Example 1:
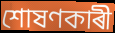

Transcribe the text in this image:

শোষণকাৰী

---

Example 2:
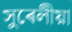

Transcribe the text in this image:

সুৰেলীয়া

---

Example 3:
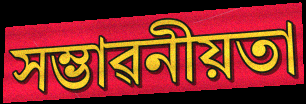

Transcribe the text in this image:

সম্ভাৱনীয়তা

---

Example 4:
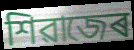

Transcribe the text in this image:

শিৱাজেৰ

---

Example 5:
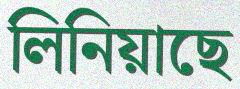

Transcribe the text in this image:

লিনিয়াছে